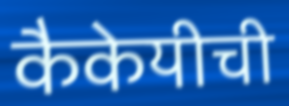
कैकेयीची